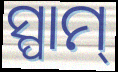
ସ୍ପାମ୍